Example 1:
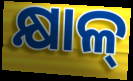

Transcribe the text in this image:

କ୍ଷାଳ୍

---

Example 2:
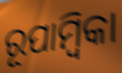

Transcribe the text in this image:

ରୂପାମ୍ୱିକା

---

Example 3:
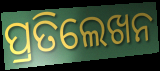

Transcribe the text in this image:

ପ୍ରତିଲେଖନ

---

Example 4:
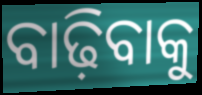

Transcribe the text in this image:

ବାଢ଼ିବାକୁ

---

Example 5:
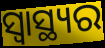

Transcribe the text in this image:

ସ୍ୱାସ୍ଥ୍ୟର